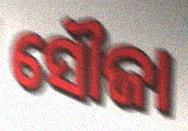
ସୌଜା